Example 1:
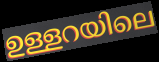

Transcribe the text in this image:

ഉള്ളറയിലെ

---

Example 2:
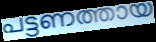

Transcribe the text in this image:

പട്ടണത്തായ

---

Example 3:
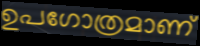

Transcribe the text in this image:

ഉപഗോത്രമാണ്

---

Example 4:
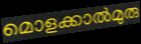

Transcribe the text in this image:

മൊളക്കാൽമുരു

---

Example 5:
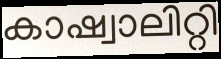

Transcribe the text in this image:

കാഷ്വാലിറ്റി